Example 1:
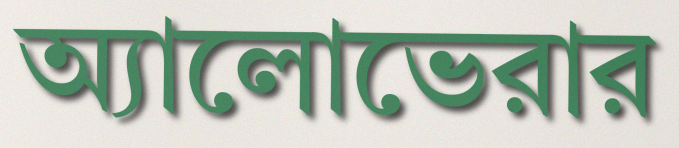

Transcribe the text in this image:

অ্যালোভেরার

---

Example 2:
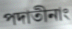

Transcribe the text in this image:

পদাতীনাং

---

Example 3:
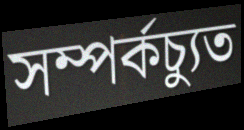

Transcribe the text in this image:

সম্পর্কচ্যুত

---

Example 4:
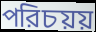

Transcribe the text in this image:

পরিচয়য়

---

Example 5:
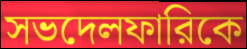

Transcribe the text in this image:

সভদেলফারিকে